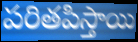
పరితపిస్తాయి